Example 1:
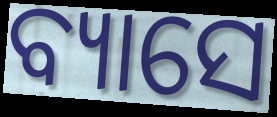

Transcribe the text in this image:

ବ୍ୟାସେ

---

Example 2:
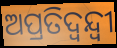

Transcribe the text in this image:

ଅପ୍ରତିଦ୍ବନ୍ଦ୍ବୀ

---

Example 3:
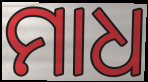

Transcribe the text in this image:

ମାଧ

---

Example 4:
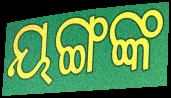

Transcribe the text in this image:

ୟଙ୍ଗଙ୍କ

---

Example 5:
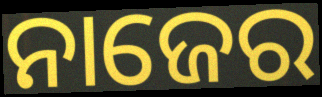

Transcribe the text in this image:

ନାଜେର